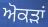
ਅੋਕੜਾਂ